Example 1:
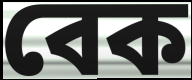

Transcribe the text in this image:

বেক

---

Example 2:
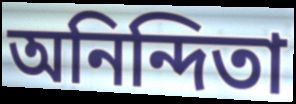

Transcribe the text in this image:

অনিন্দিতা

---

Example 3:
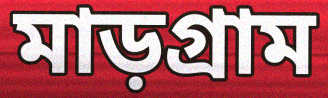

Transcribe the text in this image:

মাড়গ্রাম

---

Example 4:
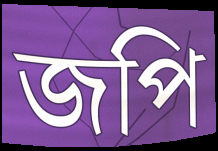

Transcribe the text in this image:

জপি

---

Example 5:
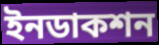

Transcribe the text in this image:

ইনডাকশন